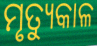
ମୃତ୍ୟୁକାଳ